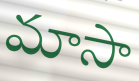
మాసా